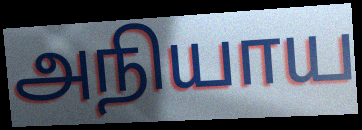
அநியாய